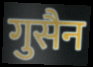
गुसैन